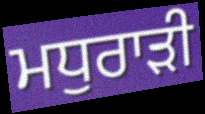
ਮਧੁਰਾੜੀ